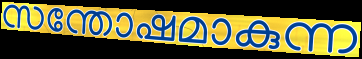
സന്തോഷമാകുന്ന